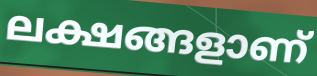
ലക്ഷങ്ങളാണ്